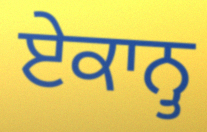
ਏਕਾਨ੍ਤ